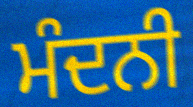
ਮੰਦਨੀ